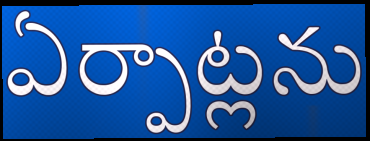
ఏర్పాట్లను